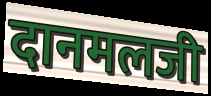
दानमलजी